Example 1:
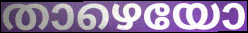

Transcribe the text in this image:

താഴെയോ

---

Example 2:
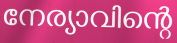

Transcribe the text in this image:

നേര്യാവിന്റെ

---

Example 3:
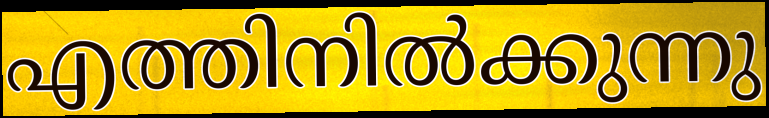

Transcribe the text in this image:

എത്തിനിൽക്കുന്നു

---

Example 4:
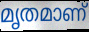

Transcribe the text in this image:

മൃതമാണ്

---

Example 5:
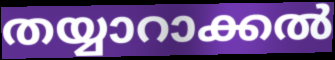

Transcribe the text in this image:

തയ്യാറാക്കൽ